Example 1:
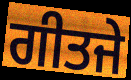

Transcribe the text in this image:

ਗੀਤਜੇ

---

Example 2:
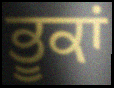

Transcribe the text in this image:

ਭੂਕਾਂ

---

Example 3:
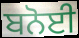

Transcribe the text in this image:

ਬਨੋਈ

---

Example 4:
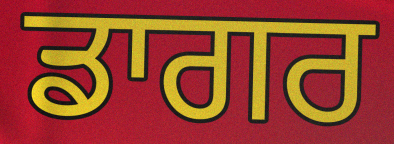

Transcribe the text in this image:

ਡਾਗਰ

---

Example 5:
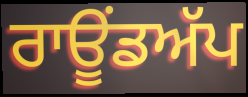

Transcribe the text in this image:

ਰਾਊਂਡਅੱਪ